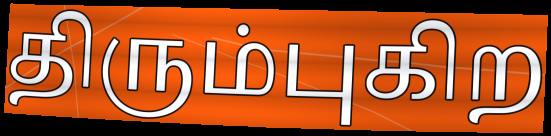
திரும்புகிற